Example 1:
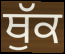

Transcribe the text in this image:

ਥੁੱਕ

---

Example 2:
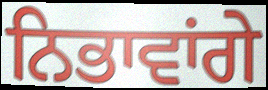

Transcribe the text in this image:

ਨਿਭਾਵਾਂਗੇ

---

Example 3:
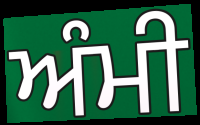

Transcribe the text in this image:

ਅੰਮੀ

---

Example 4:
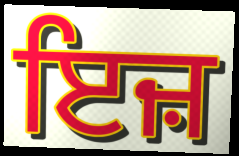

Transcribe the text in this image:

ਇਜ਼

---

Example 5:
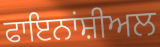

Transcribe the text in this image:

ਫਾਇਨਾਂਸ਼ੀਅਲ